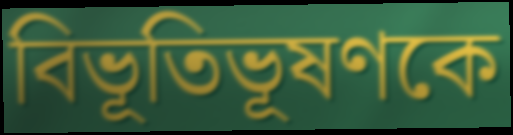
বিভূতিভূষণকে